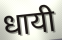
धायी